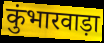
कुंभारवाड़ा